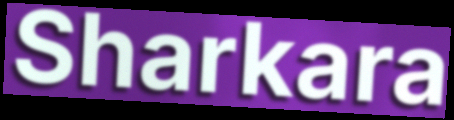
Sharkara